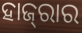
ହାଜ୍‌ରାର